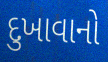
દુખાવાનો